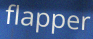
flapper